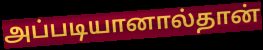
அப்படியானால்தான்